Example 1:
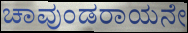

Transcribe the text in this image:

ಚಾವುಂಡರಾಯನೇ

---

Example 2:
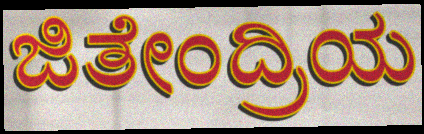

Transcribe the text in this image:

ಜಿತೇಂದ್ರಿಯ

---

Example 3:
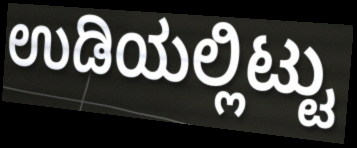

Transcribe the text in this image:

ಉಡಿಯಲ್ಲಿಟ್ಟು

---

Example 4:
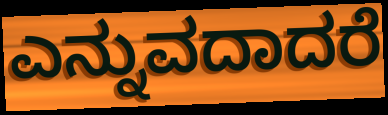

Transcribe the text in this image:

ಎನ್ನುವದಾದರೆ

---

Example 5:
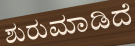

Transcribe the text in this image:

ಶುರುಮಾಡಿದೆ